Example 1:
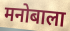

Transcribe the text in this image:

मनोबाला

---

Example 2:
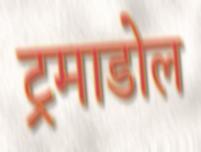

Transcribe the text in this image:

ट्रमाडोल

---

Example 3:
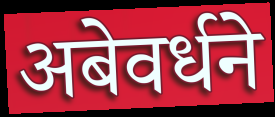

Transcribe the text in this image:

अबेवर्धने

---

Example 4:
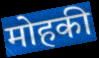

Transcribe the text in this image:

मोहकी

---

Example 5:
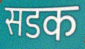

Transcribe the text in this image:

सडक